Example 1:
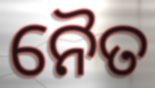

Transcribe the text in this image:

ନୈତ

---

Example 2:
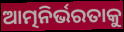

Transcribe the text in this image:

ଆତ୍ମନିର୍ଭରତାକୁ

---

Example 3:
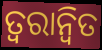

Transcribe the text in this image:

ତ୍ୱରାନ୍ଵିତ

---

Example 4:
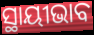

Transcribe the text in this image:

ସ୍ଥାୟୀଭାବ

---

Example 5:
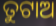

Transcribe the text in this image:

ତୁଟାଅ